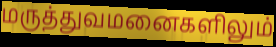
மருத்துவமனைகளிலும்